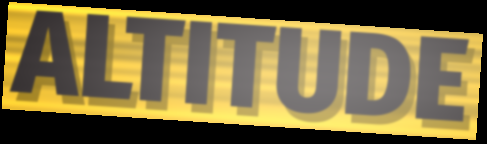
ALTITUDE